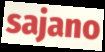
sajano